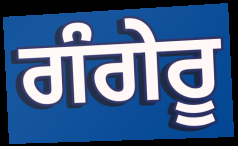
ਗੰਗੇਰੂ